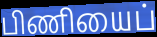
பிணியைப்